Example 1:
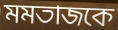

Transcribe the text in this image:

মমতাজকে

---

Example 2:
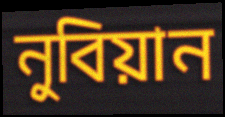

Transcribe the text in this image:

নুবিয়ান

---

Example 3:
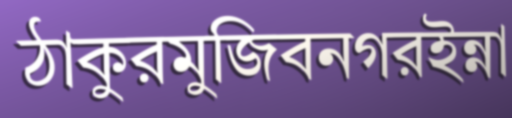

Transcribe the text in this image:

ঠাকুরমুজিবনগরইন্না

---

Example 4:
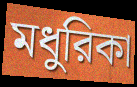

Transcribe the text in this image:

মধুরিকা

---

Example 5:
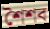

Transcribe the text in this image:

শৈশব